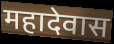
महादेवास